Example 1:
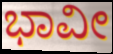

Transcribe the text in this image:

ಭಾವೀ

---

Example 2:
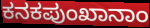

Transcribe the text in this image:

ಕನಕಪುಂಖಾನಾಂ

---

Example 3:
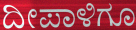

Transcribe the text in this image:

ದೀಪಾಳಿಗೂ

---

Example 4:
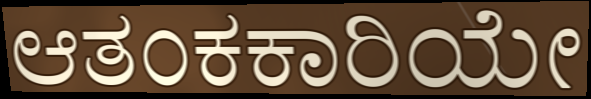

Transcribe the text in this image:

ಆತಂಕಕಾರಿಯೇ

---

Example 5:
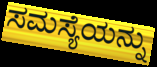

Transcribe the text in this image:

ಸಮಸ್ಯೆಯನ್ನು